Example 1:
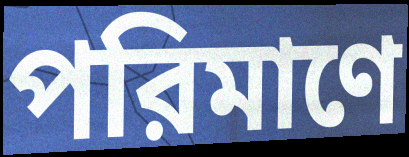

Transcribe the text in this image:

পরিমাণে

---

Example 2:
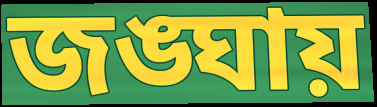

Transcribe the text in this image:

জঙ্ঘায়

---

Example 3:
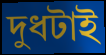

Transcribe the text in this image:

দুধটাই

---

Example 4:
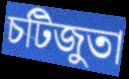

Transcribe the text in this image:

চটিজুতা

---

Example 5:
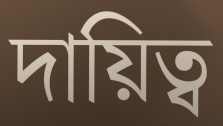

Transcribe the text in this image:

দায়িত্ব